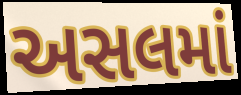
અસલમાં